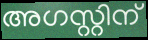
അഗസ്റ്റിന്